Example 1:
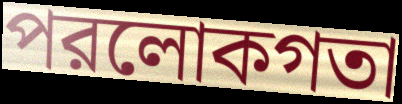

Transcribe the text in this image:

পরলোকগতা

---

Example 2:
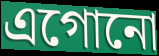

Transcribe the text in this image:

এগোনো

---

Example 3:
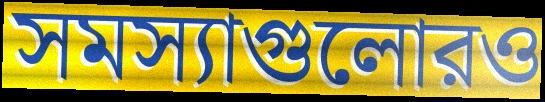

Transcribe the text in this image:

সমস্যাগুলোরও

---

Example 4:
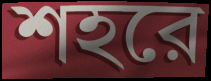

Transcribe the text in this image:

শহরে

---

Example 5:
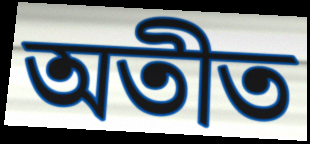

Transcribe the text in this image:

অতীত